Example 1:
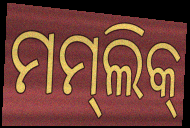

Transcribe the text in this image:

ମମ୍‌ଲିକ୍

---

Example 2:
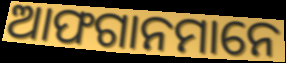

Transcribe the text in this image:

ଆଫଗାନମାନେ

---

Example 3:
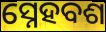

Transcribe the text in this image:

ସ୍ନେହବଶ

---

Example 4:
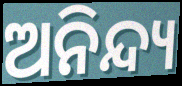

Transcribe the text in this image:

ଅନିନ୍ଦ୍ୟ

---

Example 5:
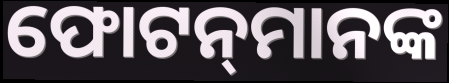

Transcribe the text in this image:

ଫୋଟନ୍‍ମାନଙ୍କ